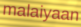
malaiyaan